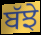
ਬੱਝੇ